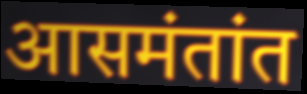
आसमंतांत